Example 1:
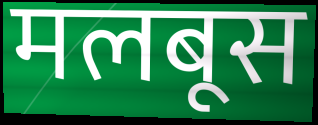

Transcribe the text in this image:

मलबूस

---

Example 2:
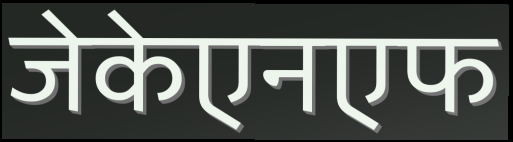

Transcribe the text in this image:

जेकेएनएफ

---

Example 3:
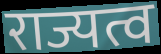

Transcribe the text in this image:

राज्यत्व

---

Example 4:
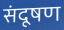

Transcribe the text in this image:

संदूषण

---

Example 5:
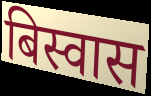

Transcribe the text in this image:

बिस्वास